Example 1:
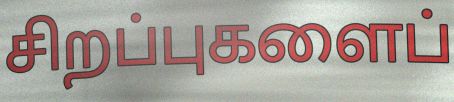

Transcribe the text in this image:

சிறப்புகளைப்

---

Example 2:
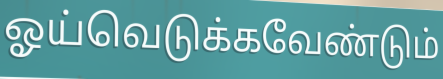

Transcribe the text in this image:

ஓய்வெடுக்கவேண்டும்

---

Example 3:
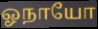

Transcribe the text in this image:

ஓநாயோ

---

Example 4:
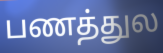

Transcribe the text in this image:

பணத்துல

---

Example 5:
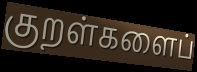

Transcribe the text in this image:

குறள்களைப்